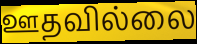
ஊதவில்லை